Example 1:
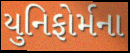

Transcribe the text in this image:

યુનિફોર્મના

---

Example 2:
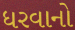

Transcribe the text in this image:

ધરવાનો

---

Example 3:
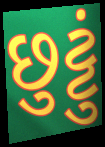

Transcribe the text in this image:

છુટ્ટું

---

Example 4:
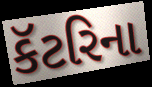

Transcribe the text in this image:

કૅટરિના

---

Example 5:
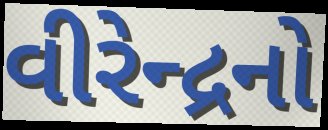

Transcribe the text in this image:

વીરેન્દ્રનો